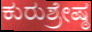
ಕುರುಶ್ರೇಷ್ಠ